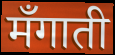
मँगाती